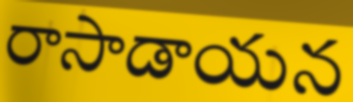
రాసాడాయన